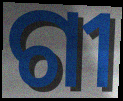
ଗୀ